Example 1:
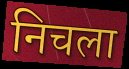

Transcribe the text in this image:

निचला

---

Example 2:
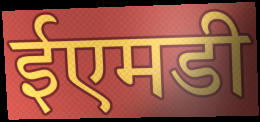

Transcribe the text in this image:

ईएमडी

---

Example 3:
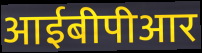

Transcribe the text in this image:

आईबीपीआर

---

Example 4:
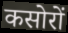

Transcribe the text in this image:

कसोरों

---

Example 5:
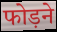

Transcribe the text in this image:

फोड़ने